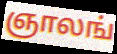
ஞாலங்